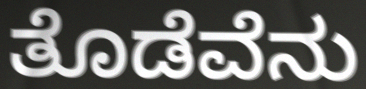
ತೊಡೆವೆನು